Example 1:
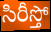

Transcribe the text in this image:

సిరీస్తో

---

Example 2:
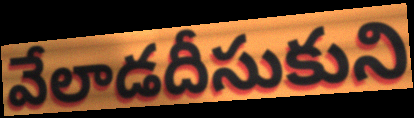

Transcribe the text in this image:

వేలాడదీసుకుని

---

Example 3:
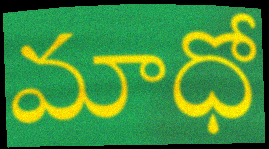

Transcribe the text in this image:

మాధో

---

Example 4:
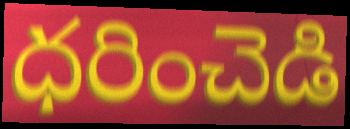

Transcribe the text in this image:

ధరించెడి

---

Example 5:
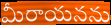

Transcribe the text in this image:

మీరాయనను